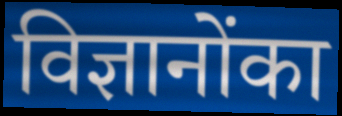
विज्ञानोंका